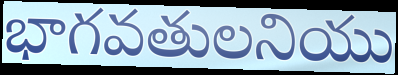
భాగవతులనియు